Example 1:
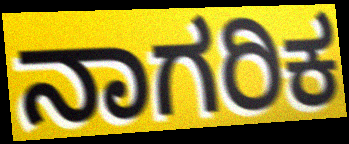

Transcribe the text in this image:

ನಾಗರಿಕ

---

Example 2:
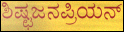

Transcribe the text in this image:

ಶಿಷ್ಟಜನಪ್ರಿಯನ್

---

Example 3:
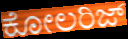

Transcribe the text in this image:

ಕೋಲರಿಜ್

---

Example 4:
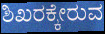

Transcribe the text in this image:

ಶಿಖರಕ್ಕೇರುವ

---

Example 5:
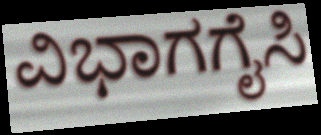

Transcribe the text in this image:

ವಿಭಾಗಗೈಸಿ